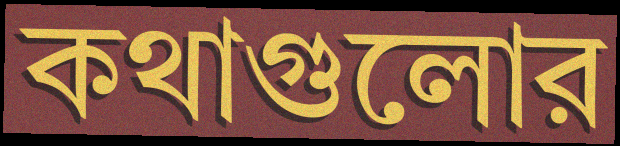
কথাগুলোর